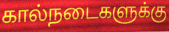
கால்நடைகளுக்கு